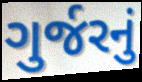
ગુર્જરનું